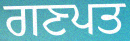
ਗਣਪਤ